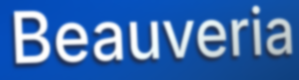
Beauveria